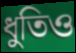
ধুতিও